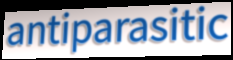
antiparasitic